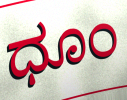
ಧೂಂ